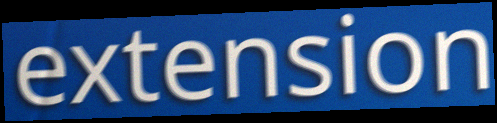
extension